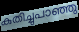
കുതിച്ചുപാഞ്ഞു